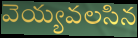
వెయ్యవలసిన